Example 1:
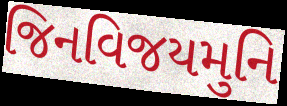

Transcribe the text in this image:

જિનવિજયમુનિ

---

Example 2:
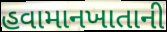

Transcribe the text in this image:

હવામાનખાતાની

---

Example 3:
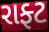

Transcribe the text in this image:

રાફ્ટ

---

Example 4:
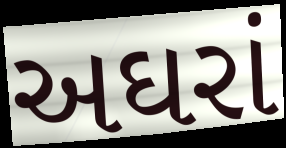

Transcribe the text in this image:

અઘરાં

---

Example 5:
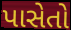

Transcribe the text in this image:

પાસેતો